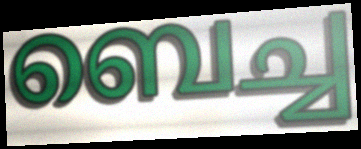
ബെച്ച